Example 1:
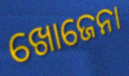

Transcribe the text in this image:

ଖୋଜେନା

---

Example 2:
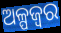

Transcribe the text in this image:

ଅଳ୍ପଜ୍ଵର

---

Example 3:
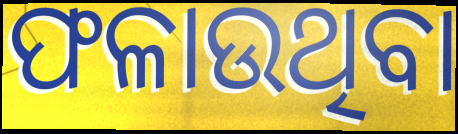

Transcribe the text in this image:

ଫଳାଉଥିବା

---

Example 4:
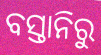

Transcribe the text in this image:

ବସ୍ତାନିରୁ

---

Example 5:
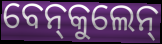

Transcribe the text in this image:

ବେନ୍‍କୁଲେନ୍